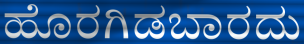
ಹೊರಗಿಡಬಾರದು